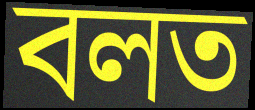
বলত